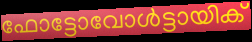
ഫോട്ടോവോൾട്ടായിക്